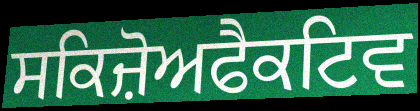
ਸਕਿਜ਼ੋਅਫੈਕਟਿਵ